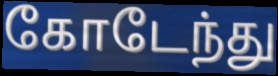
கோடேந்து